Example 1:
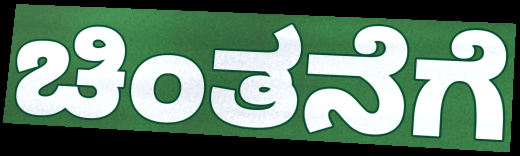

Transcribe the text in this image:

ಚಿಂತನೆಗೆ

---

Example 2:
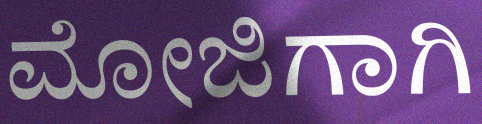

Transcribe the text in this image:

ಮೋಜಿಗಾಗಿ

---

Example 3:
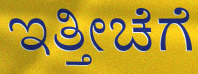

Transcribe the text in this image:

ಇತ್ತೀಚೆಗೆ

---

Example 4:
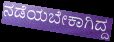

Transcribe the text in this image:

ನಡೆಯಬೇಕಾಗಿದ್ದ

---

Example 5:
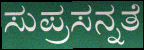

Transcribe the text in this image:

ಸುಪ್ರಸನ್ನತೆ